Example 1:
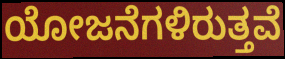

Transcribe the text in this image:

ಯೋಜನೆಗಳಿರುತ್ತವೆ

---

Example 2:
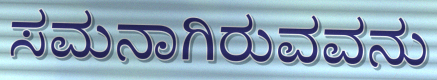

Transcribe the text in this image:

ಸಮನಾಗಿರುವವನು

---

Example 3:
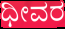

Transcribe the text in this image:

ಧೀವರ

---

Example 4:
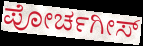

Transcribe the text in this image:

ಪೋರ್ಚಗೀಸ್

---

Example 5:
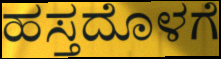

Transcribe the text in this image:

ಹಸ್ತದೊಳಗೆ